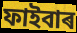
ফাইবাৰ